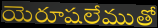
యెరూషలేముతో